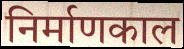
निर्माणकाल